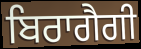
ਬਿਰਾਗੈਗੀ